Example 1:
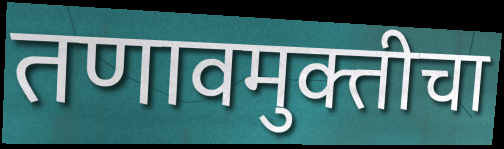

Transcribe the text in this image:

तणावमुक्तीचा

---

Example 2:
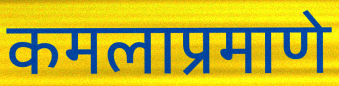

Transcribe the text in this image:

कमलाप्रमाणे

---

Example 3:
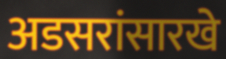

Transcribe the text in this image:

अडसरांसारखे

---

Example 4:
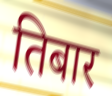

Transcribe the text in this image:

तिबार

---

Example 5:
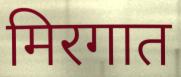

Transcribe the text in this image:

मिरगात